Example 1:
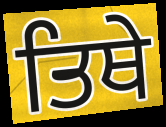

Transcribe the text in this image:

ਤਿਥੇ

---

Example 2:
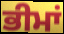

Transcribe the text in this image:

ਭੀਮਾਂ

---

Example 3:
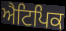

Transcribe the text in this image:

ਐਟਿਪਿਕ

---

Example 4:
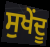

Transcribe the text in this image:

ਸੁਖੇਂਦੂ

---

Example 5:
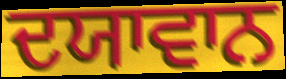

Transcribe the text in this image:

ਦਯਾਵਾਨ